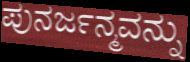
ಪುನರ್ಜನ್ಮವನ್ನು